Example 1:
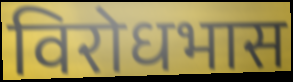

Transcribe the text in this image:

विरोधभास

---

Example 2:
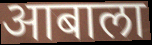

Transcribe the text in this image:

आबाला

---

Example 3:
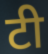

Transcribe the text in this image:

टी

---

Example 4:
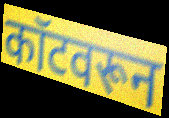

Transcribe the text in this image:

कॉटवरून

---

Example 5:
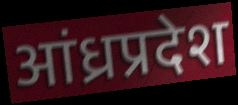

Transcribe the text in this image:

आंध्रप्रदेश